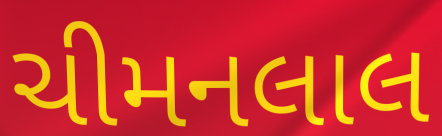
ચીમનલાલ